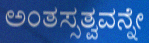
ಅಂತಸ್ಸತ್ವವನ್ನೇ